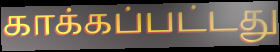
காக்கப்பட்டது